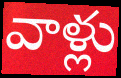
వాళ్లు